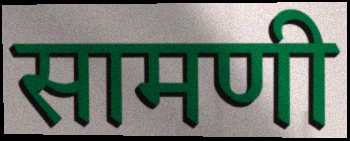
सामणी